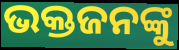
ଭକ୍ତଜନଙ୍କୁ